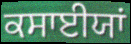
ਕਸਾਈਯਾਂ